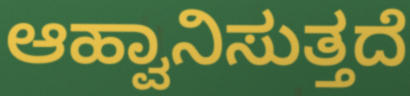
ಆಹ್ವಾನಿಸುತ್ತದೆ